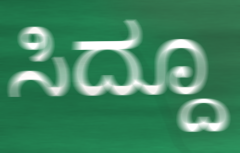
ಸಿದ್ದೂ